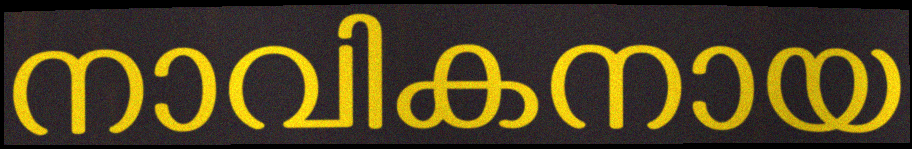
നാവികനായ